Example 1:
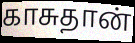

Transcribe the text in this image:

காசுதான்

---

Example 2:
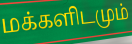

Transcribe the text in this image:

மக்களிடமும்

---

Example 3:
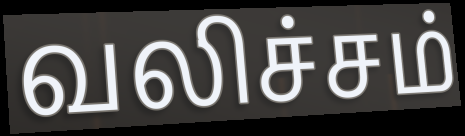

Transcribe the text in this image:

வலிச்சம்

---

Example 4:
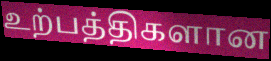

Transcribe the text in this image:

உற்பத்திகளான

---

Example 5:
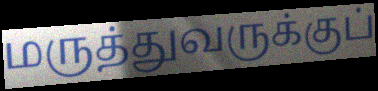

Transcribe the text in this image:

மருத்துவருக்குப்